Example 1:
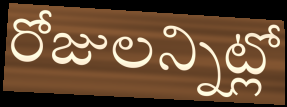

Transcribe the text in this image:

రోజులన్నిట్లో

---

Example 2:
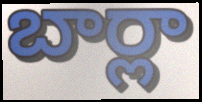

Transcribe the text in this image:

బార్లా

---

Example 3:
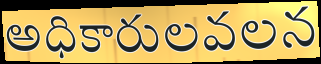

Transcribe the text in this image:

అధికారులవలన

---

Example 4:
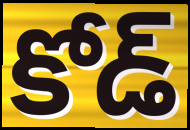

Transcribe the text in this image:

కోడ్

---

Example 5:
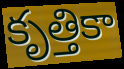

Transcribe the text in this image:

కృత్తికా